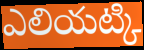
ఎలియట్కి